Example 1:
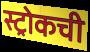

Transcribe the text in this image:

स्ट्रोकची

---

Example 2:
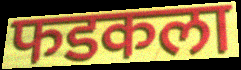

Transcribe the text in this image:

फडकला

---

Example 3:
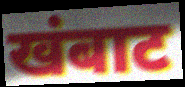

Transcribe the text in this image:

खंबाट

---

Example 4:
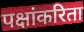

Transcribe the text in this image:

पक्षांकरिता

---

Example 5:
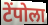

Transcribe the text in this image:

टेंपोला